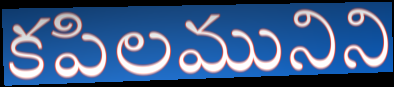
కపిలమునిని